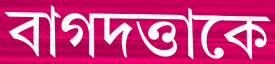
বাগদত্তাকে